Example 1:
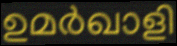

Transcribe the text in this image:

ഉമർഖാളി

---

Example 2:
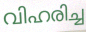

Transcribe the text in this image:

വിഹരിച്ച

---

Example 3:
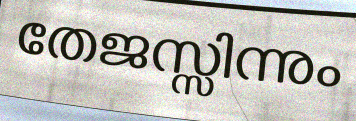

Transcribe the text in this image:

തേജസ്സിന്നും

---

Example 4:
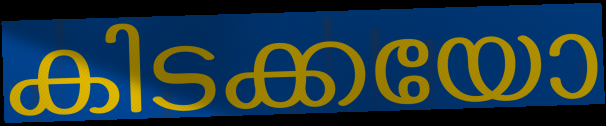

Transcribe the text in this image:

കിടക്കയോ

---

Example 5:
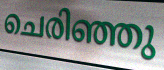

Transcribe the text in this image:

ചെരിഞ്ഞു